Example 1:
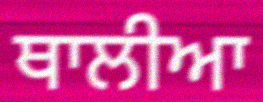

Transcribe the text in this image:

ਥਾਲੀਆ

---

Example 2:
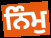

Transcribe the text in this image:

ਨਿੰਮੁ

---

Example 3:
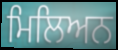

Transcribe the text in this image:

ਮਿਲਿਅਨ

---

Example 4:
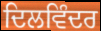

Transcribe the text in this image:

ਦਿਲਵਿੰਦਰ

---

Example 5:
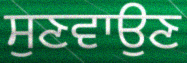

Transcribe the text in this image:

ਸੁਣਵਾਉਣ